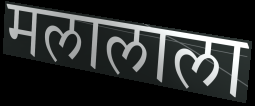
मलालाला